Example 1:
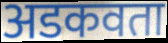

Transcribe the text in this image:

अडकवता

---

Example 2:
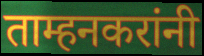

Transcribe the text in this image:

ताम्हनकरांनी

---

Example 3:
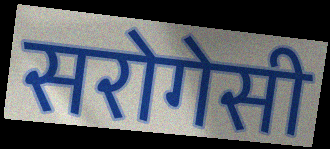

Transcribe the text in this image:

सरोगेसी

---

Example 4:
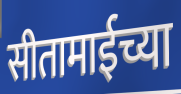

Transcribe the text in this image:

सीतामाईच्या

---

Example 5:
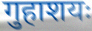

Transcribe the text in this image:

गुहाशयः